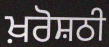
ਖ਼ਰੋਸ਼ਠੀ